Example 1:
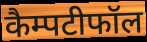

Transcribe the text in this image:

कैम्पटीफॉल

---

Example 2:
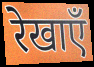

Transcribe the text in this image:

रेखाएँ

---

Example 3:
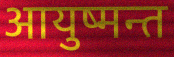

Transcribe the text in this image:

आयुष्मन्त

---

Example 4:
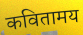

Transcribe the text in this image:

कवितामय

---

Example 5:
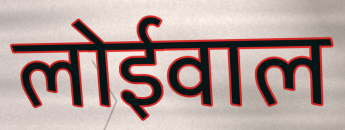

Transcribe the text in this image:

लोईवाल